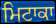
ਮਿਟਾਕਾ